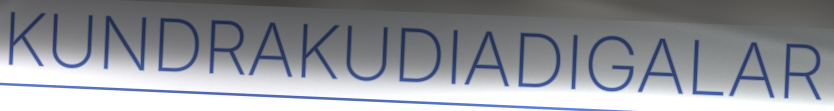
KUNDRAKUDIADIGALAR